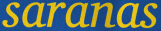
saranas